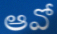
ఆవో